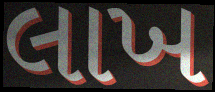
લાખ